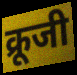
क्रूजी